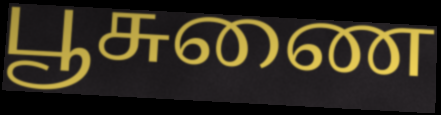
பூசுணை